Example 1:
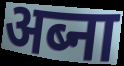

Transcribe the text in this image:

अब्ना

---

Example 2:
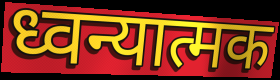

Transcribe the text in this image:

ध्वन्यात्मक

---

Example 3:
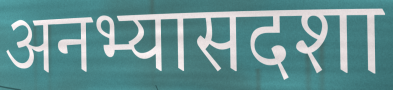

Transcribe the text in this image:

अनभ्यासदशा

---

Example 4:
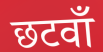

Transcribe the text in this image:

छटवाँ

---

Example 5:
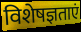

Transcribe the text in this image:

विशेषज्ञताएं